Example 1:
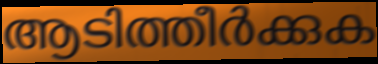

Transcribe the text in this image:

ആടിത്തീർക്കുക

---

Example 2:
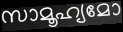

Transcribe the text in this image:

സാമൂഹ്യമോ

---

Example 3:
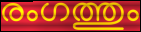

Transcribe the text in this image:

രംഗത്തും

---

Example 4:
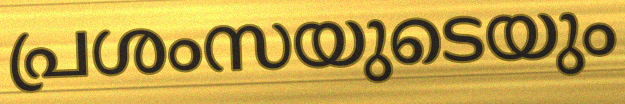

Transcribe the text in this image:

പ്രശംസയുടെയും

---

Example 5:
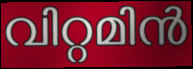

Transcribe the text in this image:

വിറ്റമിൻ